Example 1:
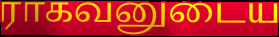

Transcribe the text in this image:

ராகவனுடைய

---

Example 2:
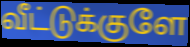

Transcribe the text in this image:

வீட்டுக்குளே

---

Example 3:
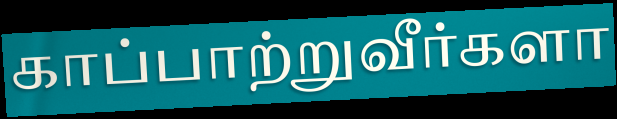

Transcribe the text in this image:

காப்பாற்றுவீர்களா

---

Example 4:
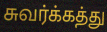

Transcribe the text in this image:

சுவர்க்கத்து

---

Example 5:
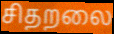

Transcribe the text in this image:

சிதறலை